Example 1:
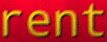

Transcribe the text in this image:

rent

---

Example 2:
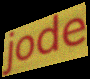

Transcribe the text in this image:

jode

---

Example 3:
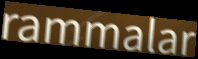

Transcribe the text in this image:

rammalar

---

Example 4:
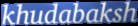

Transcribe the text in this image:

khudabaksh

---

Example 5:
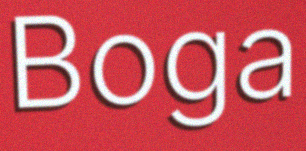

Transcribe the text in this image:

Boga